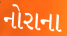
નોરાના